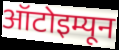
ऑटोइम्यून